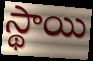
స్థాయి